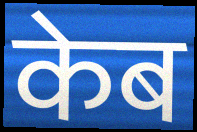
केब